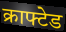
क्राफ्टेड